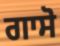
ਗਾਸੋ